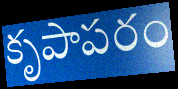
కృపాపరం